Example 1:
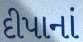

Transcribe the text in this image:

દીપાનાં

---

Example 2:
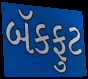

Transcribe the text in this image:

બૅકફુટ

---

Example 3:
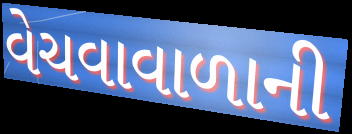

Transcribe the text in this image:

વેચવાવાળાની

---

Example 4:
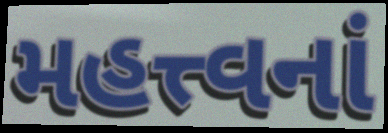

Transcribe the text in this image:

મહત્ત્વનાં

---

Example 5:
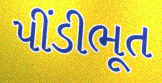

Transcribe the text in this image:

પીંડીભૂત